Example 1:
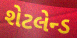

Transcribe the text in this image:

શેટલેન્ડ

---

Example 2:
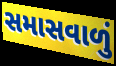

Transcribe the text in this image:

સમાસવાળું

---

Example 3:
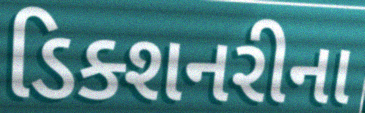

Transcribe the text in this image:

ડિક્શનરીના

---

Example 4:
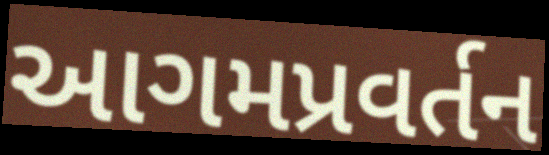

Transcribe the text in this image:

આગમપ્રવર્તન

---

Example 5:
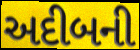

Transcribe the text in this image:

અદીબની